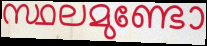
സ്ഥലമുണ്ടോ